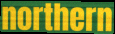
northern